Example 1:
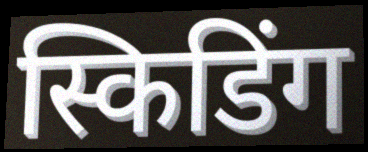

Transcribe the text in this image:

स्किडिंग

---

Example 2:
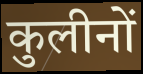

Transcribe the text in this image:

कुलीनों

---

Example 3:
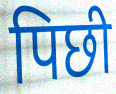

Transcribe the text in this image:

पिछी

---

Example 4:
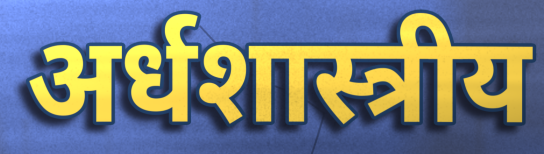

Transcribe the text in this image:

अर्धशास्त्रीय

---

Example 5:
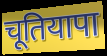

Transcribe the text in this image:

चूतियापा